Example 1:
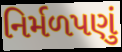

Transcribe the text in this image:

નિર્મળપણું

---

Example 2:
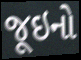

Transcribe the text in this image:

જૂઇનો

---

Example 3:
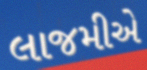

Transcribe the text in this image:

લાજમીએ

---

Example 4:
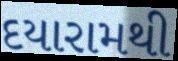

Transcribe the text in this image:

દયારામથી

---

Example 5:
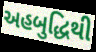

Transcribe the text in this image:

અહબુદ્ધિથી